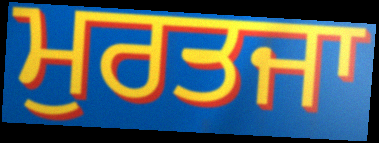
ਮੁਰਤਜਾ